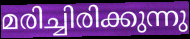
മരിച്ചിരിക്കുന്നു